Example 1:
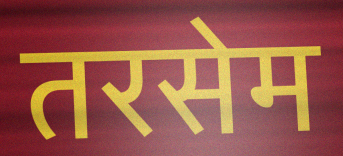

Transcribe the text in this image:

तरसेम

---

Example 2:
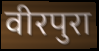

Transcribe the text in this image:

वीरपुरा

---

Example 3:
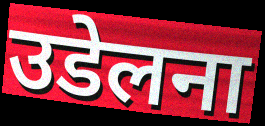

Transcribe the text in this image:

उडेलना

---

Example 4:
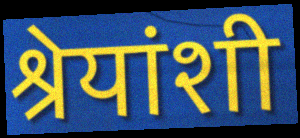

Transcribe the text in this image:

श्रेयांशी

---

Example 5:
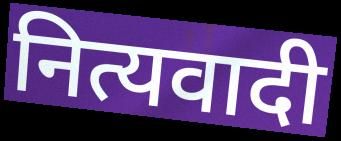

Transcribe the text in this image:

नित्यवादी